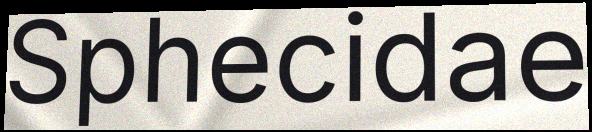
Sphecidae